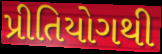
પ્રીતિયોગથી